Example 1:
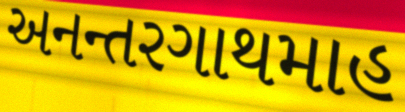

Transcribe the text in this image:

અનન્તરગાથમાહ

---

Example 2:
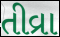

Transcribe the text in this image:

તીવ્રા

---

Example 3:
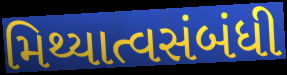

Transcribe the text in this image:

મિથ્યાત્વસંબંધી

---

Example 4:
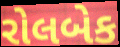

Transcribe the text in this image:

રોલબેક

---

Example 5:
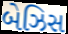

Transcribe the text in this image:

બેઝિસ